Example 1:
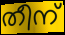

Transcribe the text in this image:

തീന്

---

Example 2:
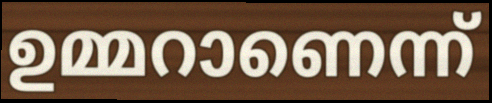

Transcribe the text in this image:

ഉമ്മറാണെന്ന്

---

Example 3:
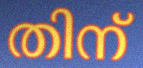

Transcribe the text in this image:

തിന്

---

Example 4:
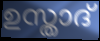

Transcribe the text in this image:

ഉസ്താദ്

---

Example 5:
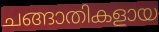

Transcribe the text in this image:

ചങ്ങാതികളായ